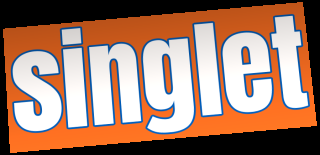
singlet